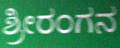
ಶ್ರೀರಂಗನ